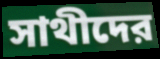
সাথীদের